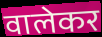
वालेकर